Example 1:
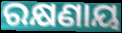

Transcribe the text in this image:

ରକ୍ଷଣାୟ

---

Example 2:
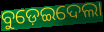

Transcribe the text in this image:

ବୁଡ଼େଇଦେଲା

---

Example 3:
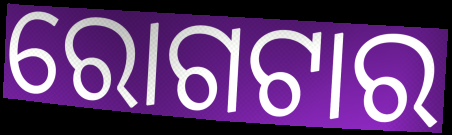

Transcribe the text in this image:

ରୋଗଟାର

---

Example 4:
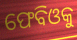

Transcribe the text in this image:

ଫେବିଓକୁ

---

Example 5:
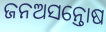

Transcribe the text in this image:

ଜନଅସନ୍ତୋଷ